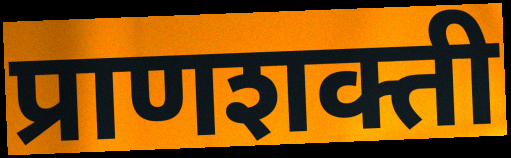
प्राणशक्ती